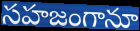
సహజంగానూ